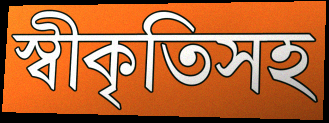
স্বীকৃতিসহ